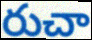
రుచా